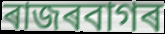
ৰাজৰবাগৰ